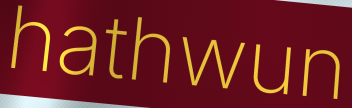
hathwun